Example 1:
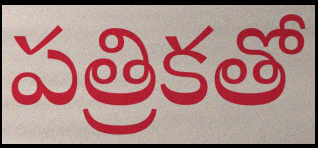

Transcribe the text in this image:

పత్రికతో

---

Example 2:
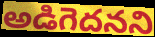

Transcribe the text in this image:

అడిగెదనని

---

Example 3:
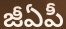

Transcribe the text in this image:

జీఏపీ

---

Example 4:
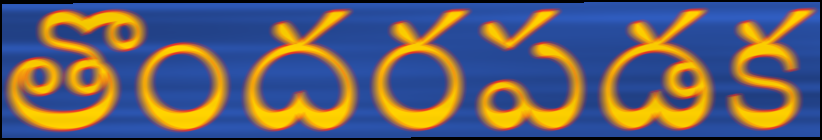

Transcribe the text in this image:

తొందరపడక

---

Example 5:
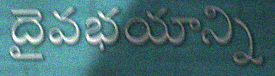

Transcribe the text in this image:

దైవభయాన్ని